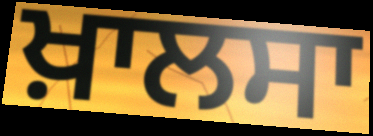
ਖ਼ਾਲਸਾ